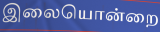
இலையொன்றை